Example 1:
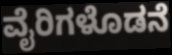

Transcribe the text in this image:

ವೈರಿಗಳೊಡನೆ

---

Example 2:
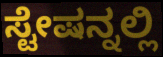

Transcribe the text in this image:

ಸ್ಟೇಷನ್ನಲ್ಲಿ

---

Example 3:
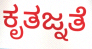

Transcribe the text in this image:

ಕೃತಜ್ನತೆ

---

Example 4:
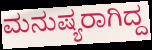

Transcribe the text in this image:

ಮನುಷ್ಯರಾಗಿದ್ದ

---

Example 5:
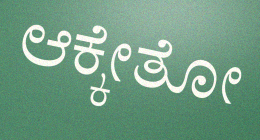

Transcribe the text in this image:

ಆಕ್ಕೇತೋ